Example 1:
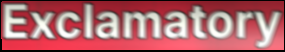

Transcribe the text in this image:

Exclamatory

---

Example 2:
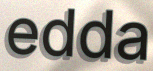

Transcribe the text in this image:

edda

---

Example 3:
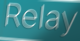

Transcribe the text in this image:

Relay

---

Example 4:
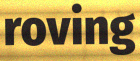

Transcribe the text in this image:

roving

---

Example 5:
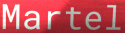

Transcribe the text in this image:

Martel